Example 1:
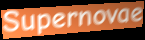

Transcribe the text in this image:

Supernovae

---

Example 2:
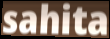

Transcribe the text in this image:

sahita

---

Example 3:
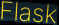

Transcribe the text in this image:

Flask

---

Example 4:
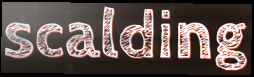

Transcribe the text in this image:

scalding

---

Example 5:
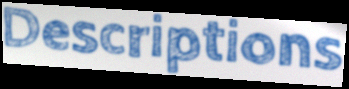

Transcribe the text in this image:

Descriptions